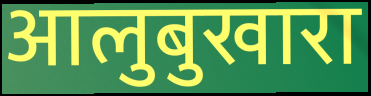
आलुबुखारा